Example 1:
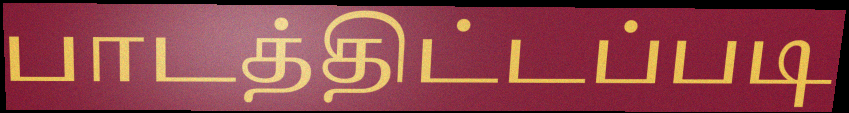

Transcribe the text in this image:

பாடத்திட்டப்படி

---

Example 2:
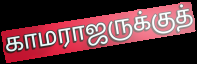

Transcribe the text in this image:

காமராஜருக்குத்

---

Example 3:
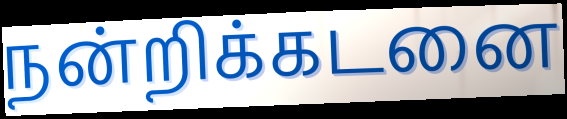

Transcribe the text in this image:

நன்றிக்கடனை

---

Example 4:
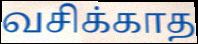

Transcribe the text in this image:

வசிக்காத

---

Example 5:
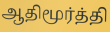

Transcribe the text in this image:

ஆதிமூர்த்தி